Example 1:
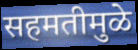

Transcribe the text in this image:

सहमतीमुळे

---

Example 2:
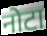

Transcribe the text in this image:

नोटा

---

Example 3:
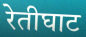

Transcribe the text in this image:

रेतीघाट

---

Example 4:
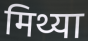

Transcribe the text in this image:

मिथ्या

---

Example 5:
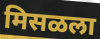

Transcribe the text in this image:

मिसळला